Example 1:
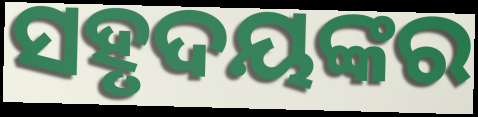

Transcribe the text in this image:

ସହୃଦୟଙ୍କର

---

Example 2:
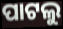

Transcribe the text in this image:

ପାଟଲୁ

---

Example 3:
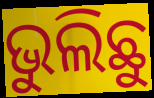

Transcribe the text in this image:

ଭୁଲିଛୁ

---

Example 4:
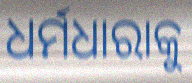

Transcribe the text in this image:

ଧର୍ମଧାରାକୁ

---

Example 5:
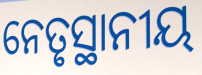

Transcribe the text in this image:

ନେତୃସ୍ଥାନୀୟ